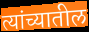
त्यांच्यातील